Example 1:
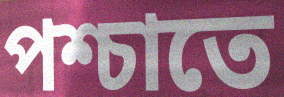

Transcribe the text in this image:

পশ্চাতে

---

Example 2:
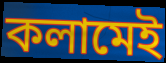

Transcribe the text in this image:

কলামেই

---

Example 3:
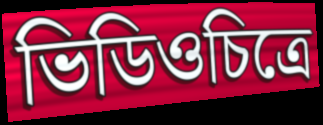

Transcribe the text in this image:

ভিডিওচিত্রে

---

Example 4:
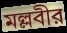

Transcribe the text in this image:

মল্লবীর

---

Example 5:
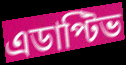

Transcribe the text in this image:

এডাপ্টিভ